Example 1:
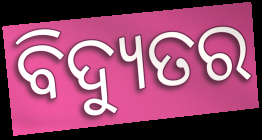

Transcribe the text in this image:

ବିଦ୍ୟୁତର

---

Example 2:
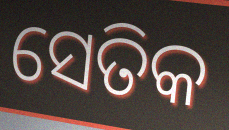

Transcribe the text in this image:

ସେତିକ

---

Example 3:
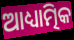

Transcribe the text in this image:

ଆଧ୍ୟାତ୍ମିକ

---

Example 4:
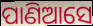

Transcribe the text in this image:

ପାଣିଆସେ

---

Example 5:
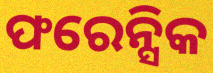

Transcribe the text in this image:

ଫରେନ୍ସିକ